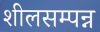
शीलसम्पन्न